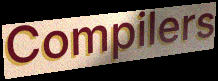
Compilers